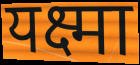
यक्ष्मा